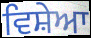
ਵਿਸ਼ੇਆ